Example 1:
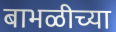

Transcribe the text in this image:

बाभळीच्या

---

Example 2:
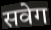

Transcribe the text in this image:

सवेग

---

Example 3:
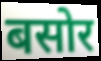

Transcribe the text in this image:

बसोर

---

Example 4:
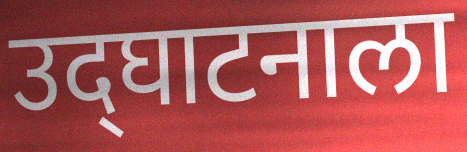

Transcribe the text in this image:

उद्घाटनाला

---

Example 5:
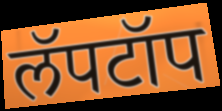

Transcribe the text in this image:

लॅपटॉप